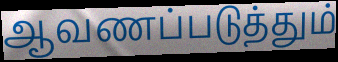
ஆவணப்படுத்தும்